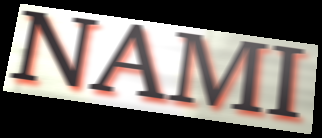
NAMI